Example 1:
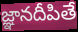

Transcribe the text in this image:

జ్ఞానదీపితే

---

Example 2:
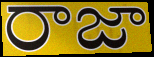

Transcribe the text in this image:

రాజా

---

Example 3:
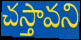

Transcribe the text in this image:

చస్తావని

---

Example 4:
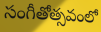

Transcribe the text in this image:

సంగీతోత్సవంలో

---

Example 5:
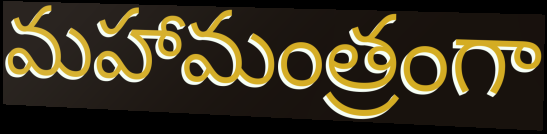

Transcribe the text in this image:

మహామంత్రంగా